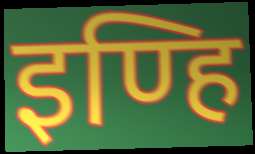
इण्हि